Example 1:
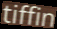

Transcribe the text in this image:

tiffin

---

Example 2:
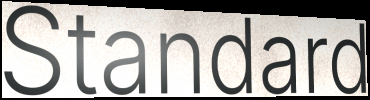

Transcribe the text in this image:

Standard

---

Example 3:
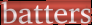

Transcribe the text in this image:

batters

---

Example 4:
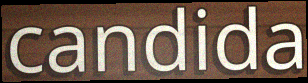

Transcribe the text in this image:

candida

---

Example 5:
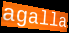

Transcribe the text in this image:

agalla